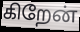
கிறேன்